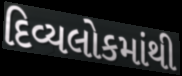
દિવ્યલોકમાંથી